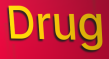
Drug